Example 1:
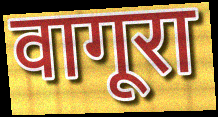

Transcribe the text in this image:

वागूरा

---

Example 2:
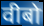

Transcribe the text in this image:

वीबो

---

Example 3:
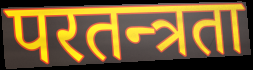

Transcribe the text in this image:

परतन्त्रता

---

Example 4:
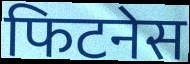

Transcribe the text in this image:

फिटनेस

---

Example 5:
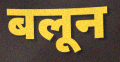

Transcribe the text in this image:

बलून